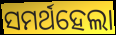
ସମର୍ଥହେଲା